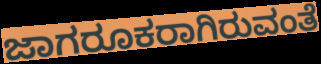
ಜಾಗರೂಕರಾಗಿರುವಂತೆ